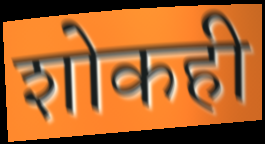
शोकही